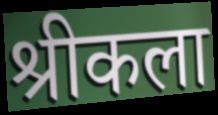
श्रीकला